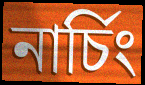
নাৰ্চিং